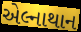
એલ્નાથાન